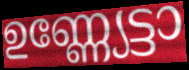
ഉണ്ണ്യേട്ടാ